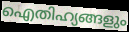
ഐതിഹ്യങ്ങളും